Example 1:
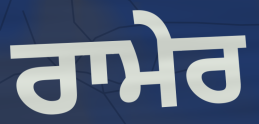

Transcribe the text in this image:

ਰਾਮੇਰ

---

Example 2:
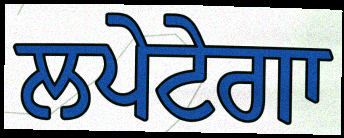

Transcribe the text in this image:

ਲਪੇਟੇਗਾ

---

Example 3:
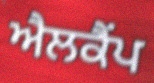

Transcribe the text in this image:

ਐਲਕੈਂਪ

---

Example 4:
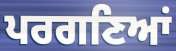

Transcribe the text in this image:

ਪਰਗਣਿਆਂ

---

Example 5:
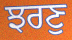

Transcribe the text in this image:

ਝਰਣੁ